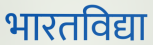
भारतविद्या